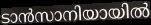
ടാൻസാനിയായിൽ